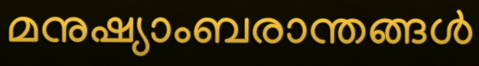
മനുഷ്യാംബരാന്തങ്ങൾ